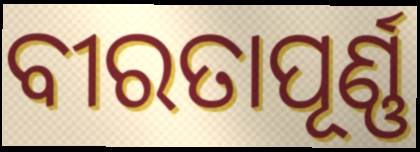
ବୀରତାପୂର୍ଣ୍ଣ